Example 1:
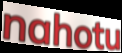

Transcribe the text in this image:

nahotu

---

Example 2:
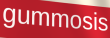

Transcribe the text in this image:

gummosis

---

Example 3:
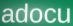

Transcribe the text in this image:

adocu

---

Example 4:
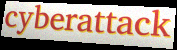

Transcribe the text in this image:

cyberattack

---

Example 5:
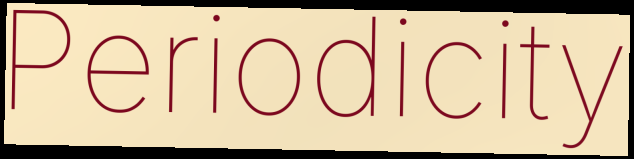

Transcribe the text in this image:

Periodicity